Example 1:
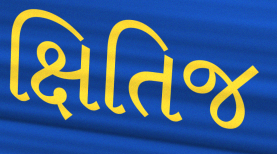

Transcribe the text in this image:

ક્ષિતિજ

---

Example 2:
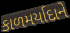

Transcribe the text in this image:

કાળમર્યાદાને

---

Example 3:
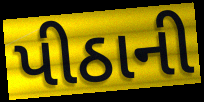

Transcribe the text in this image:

પીઠાની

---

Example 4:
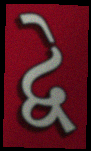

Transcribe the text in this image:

દ્વે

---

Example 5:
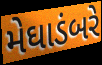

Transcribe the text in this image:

મેઘાડંબરે